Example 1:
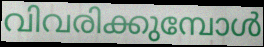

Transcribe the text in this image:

വിവരിക്കുമ്പോൾ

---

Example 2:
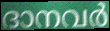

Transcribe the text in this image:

ദാനവർ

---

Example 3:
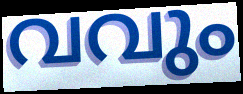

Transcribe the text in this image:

വവും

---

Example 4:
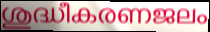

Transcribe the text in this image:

ശുദ്ധീകരണജലം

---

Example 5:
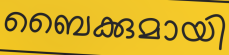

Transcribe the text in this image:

ബൈക്കുമായി